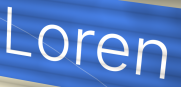
Loren